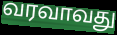
வரவாவது